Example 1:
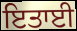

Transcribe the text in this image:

ਇਤਾਈ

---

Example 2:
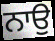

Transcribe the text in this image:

ਨਾਉ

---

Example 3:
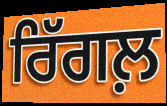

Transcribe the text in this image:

ਰਿੱਗਲ਼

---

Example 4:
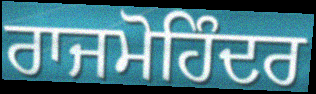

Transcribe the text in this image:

ਰਾਜਮੋਹਿੰਦਰ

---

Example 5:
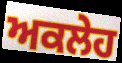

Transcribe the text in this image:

ਅਕਲੇਹ